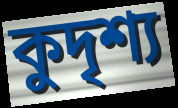
কুদৃশ্য